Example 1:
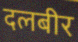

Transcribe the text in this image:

दलबीर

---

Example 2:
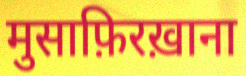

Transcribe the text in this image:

मुसाफ़िरख़ाना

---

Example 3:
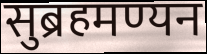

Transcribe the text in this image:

सुब्रहमण्यन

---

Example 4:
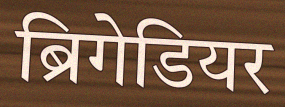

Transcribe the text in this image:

ब्रिगेडियर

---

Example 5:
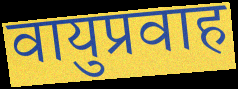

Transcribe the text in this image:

वायुप्रवाह